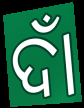
ଦାଁ